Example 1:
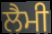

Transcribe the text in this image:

ਲੈਮੀ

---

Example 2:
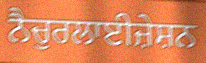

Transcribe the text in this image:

ਨੈਚੁਰਲਾਈਜ਼ੇਸ਼ਨ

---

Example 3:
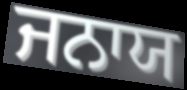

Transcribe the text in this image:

ਜਨਾਯ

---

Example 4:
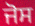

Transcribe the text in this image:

ਜੋਸ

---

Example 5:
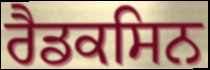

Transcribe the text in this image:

ਰੈਡਕਸਿਨ